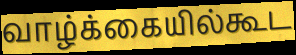
வாழ்க்கையில்கூட